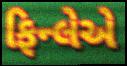
ફિન્લેએ